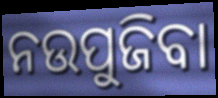
ନଉପୁଜିବା